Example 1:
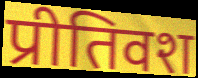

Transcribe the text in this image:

प्रीतिवश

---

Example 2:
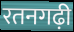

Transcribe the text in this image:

रतनगढ़ी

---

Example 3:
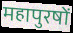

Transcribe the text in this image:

महापुरषों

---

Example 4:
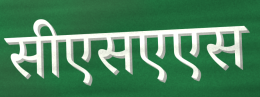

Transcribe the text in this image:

सीएसएएस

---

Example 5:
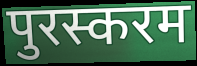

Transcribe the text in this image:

पुरस्करम